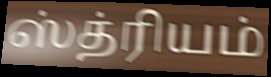
ஸ்த்ரியம்